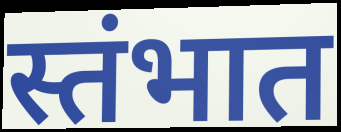
स्तंभात